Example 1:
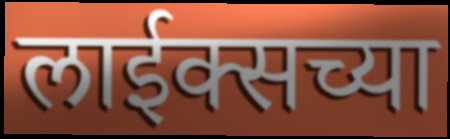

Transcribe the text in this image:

लाईक्सच्या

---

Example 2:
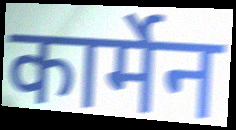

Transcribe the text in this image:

कार्मेन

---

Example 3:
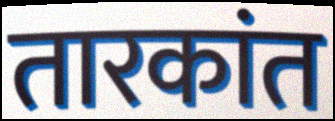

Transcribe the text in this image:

तारकांत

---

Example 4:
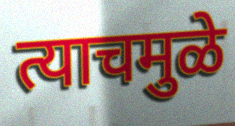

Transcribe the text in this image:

त्याचमुळे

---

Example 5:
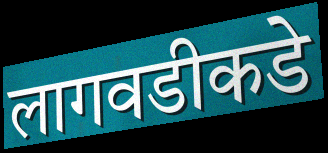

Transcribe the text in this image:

लागवडीकडे